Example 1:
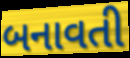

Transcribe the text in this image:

બનાવતી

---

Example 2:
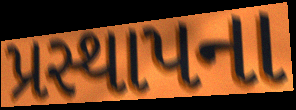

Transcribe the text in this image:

પ્રસ્થાપના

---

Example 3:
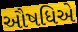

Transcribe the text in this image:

ઔષધિએ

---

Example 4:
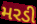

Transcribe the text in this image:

મરડી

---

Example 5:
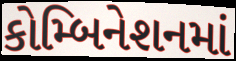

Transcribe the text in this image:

કોમ્બિનેશનમાં